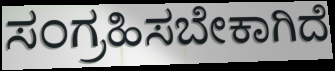
ಸಂಗ್ರಹಿಸಬೇಕಾಗಿದೆ